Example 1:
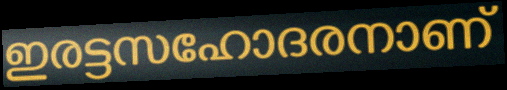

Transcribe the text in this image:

ഇരട്ടസഹോദരനാണ്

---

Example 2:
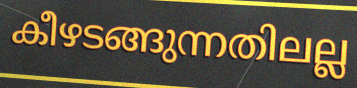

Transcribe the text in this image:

കീഴടങ്ങുന്നതിലല്ല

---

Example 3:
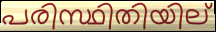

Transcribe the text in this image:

പരിസ്ഥിതിയില്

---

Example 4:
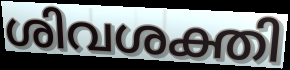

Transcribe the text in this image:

ശിവശക്തി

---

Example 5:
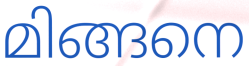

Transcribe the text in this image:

മിങ്ങനെ